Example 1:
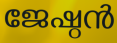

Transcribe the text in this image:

ജേഷ്ഠൻ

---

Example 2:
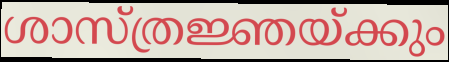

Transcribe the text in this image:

ശാസ്ത്രജ്ഞയ്ക്കും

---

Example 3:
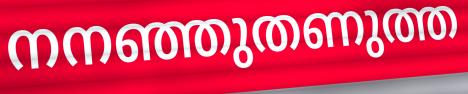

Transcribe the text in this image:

നനഞ്ഞുതണുത്ത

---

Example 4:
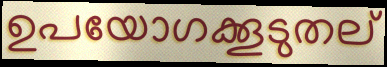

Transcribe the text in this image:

ഉപയോഗക്കൂടുതല്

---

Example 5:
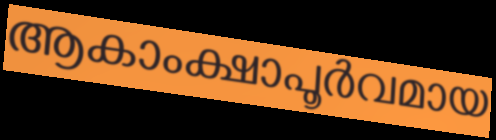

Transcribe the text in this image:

ആകാംക്ഷാപൂർവമായ